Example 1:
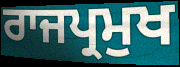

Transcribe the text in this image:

ਰਾਜਪ੍ਰਮੁਖ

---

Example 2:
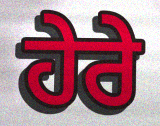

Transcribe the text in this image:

ਹੇਰੇ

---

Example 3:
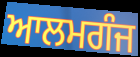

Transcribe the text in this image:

ਆਲਮਗੰਜ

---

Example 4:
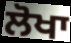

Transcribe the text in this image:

ਲੋਖਾ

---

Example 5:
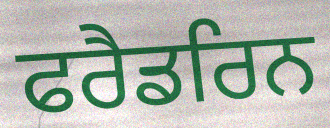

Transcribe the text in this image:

ਫਰੈਡਰਿਨ